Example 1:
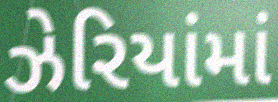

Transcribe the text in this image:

ઝેરિયાંમાં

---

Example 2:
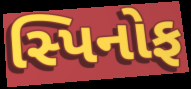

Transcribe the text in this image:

સ્પિનોફ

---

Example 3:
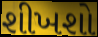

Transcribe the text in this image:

શીખશો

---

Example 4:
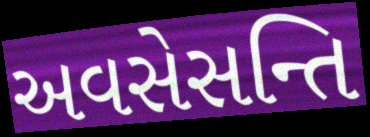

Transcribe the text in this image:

અવસેસન્તિ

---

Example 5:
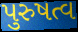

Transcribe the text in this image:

પુરુષત્વ